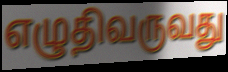
எழுதிவருவது